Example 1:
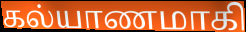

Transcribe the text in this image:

கல்யாணமாகி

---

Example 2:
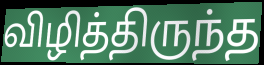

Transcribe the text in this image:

விழித்திருந்த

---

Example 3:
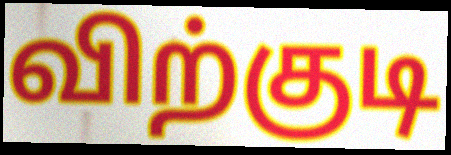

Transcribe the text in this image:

விற்குடி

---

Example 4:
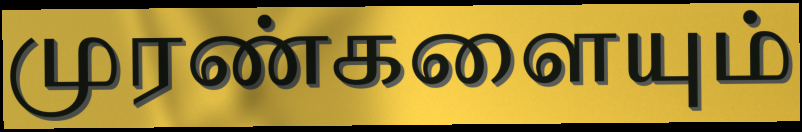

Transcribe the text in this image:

முரண்களையும்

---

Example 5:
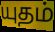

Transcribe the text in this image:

யுதம்